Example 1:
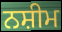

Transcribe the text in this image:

ਨਸ਼ੀਮ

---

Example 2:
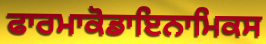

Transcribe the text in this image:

ਫਾਰਮਾਕੋਡਾਇਨਾਮਿਕਸ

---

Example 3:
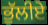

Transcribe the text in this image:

ਭੁੱਲੀਏ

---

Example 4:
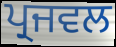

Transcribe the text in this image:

ਪ੍ਰਜਵਲ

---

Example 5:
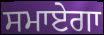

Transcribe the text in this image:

ਸਮਾਏਗਾ